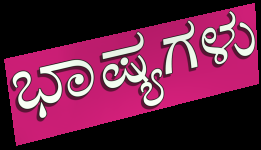
ಭಾಷ್ಯಗಳು